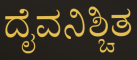
ದೈವನಿಶ್ಚಿತ